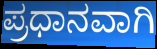
ಪ್ರಧಾನವಾಗಿ